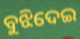
ବୁଝିଦେଇ